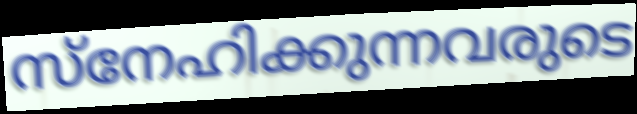
സ്നേഹിക്കുന്നവരുടെ